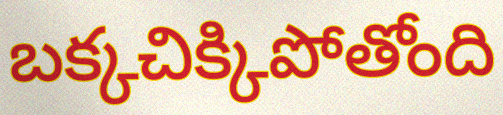
బక్కచిక్కిపోతోంది